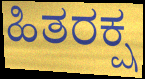
ಹಿತರಕ್ಷ